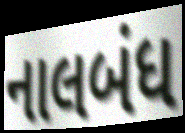
નાલબંધ